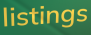
listings